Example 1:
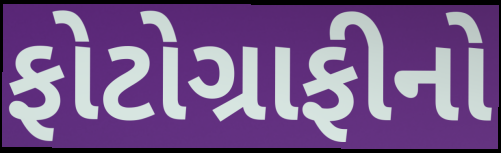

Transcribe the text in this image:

ફોટોગ્રાફીનો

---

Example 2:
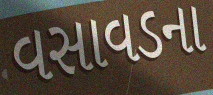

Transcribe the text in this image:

વસાવડના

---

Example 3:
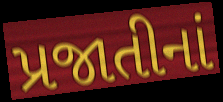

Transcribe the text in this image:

પ્રજાતીનાં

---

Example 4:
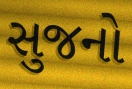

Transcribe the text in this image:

સુજનો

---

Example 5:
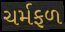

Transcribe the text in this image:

ચર્મફળ